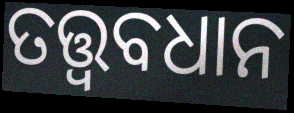
ତତ୍ତ୍ୱବଧାନ